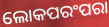
ଲୋକପରଂପରା